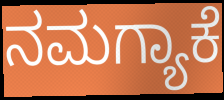
ನಮಗ್ಯಾಕೆ